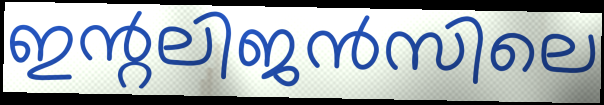
ഇന്റലിജൻസിലെ